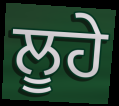
ਲੂਹੇ